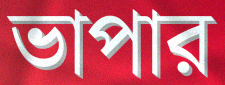
ভাপার